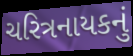
ચરિત્રનાયકનું